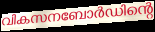
വികസനബോർഡിന്റെ